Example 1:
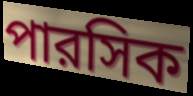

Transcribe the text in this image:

পারসিক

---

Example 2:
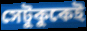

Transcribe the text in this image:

সেটুকুকেই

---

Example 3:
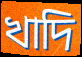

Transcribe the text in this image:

খাদি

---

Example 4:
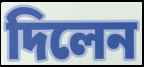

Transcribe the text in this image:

দিলেন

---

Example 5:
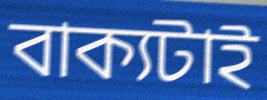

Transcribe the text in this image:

বাক্যটাই